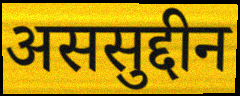
अससुद्दीन